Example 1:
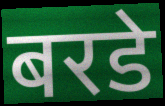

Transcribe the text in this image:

बरडे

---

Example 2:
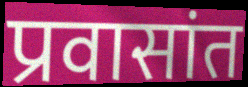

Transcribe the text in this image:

प्रवासांत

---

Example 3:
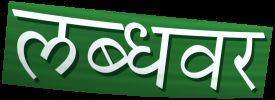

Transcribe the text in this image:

लब्धवर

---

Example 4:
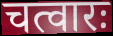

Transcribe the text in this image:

चत्वारः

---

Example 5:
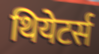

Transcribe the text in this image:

थियेटर्स